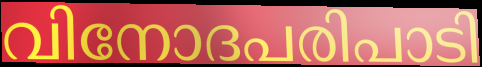
വിനോദപരിപാടി